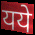
यये